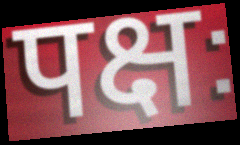
पक्षः